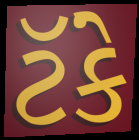
ટૅંકે